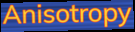
Anisotropy